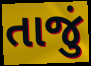
તાજું